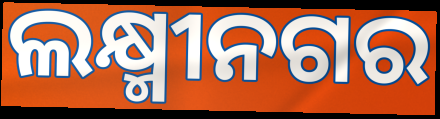
ଲକ୍ଷ୍ମୀନଗର